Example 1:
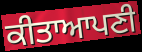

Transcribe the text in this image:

ਕੀਤਾਆਪਣੀ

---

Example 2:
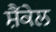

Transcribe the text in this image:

ਸ਼ੈਂਕੇਲ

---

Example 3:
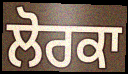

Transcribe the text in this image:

ਲੋਰਕਾ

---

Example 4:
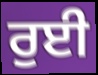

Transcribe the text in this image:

ਰੁਈ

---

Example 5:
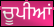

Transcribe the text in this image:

ਚੂਪੀਆਂ